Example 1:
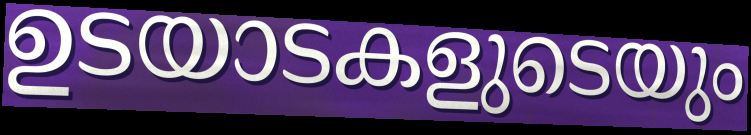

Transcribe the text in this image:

ഉടയാടകളുടെയും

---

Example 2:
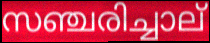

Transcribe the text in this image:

സഞ്ചരിച്ചാല്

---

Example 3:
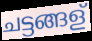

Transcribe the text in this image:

ചട്ടങ്ങള്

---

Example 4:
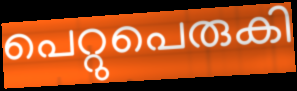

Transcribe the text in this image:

പെറ്റുപെരുകി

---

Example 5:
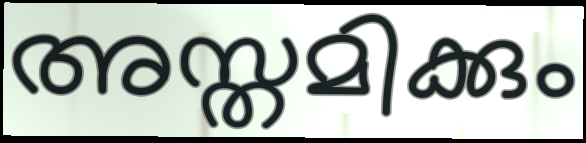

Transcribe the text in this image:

അസ്തമിക്കും